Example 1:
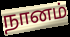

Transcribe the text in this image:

நானம்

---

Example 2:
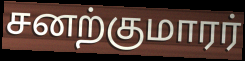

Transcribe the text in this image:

சனற்குமாரர்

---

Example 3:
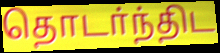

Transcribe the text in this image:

தொடர்ந்திட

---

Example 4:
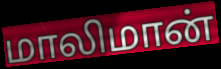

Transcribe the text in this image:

மாலிமான்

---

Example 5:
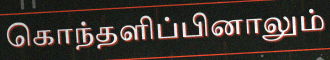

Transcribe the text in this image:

கொந்தளிப்பினாலும்